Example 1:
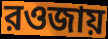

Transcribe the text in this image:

রওজায়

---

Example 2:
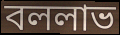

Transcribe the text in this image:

বললাভ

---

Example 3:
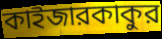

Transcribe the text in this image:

কাইজারকাকুর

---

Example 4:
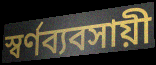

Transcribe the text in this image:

স্বর্ণব্যবসায়ী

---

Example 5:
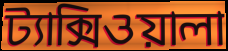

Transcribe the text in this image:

ট্যাক্সিওয়ালা